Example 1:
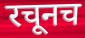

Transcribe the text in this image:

रचूनच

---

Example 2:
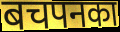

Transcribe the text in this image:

बचपनका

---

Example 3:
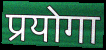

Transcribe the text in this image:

प्रयोगा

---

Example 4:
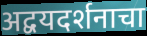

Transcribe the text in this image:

अद्वयदर्शनाचा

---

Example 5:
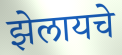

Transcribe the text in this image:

झेलायचे